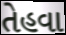
તેહવા